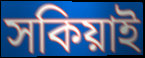
সকিয়াই